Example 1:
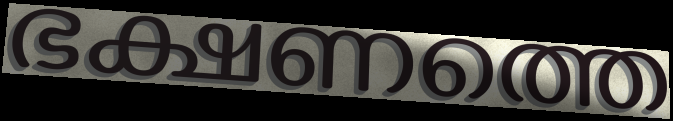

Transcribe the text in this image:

ഭക്ഷണത്തെ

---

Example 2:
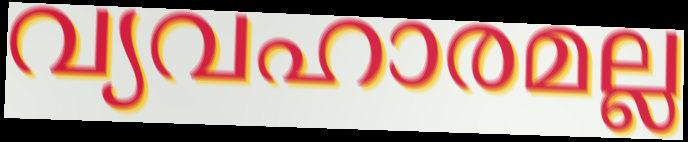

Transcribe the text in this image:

വ്യവഹാരമല്ല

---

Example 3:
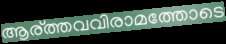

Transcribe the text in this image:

ആര്ത്തവവിരാമത്തോടെ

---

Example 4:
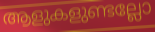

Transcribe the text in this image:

ആളുകളുണ്ടല്ലോ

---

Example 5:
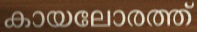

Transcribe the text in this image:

കായലോരത്ത്